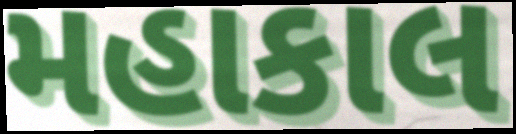
મહાકાલ